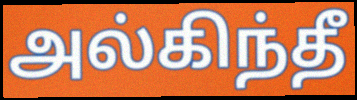
அல்கிந்தீ